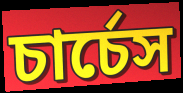
চার্চেস